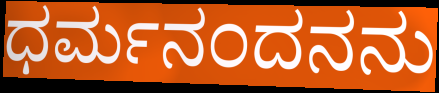
ಧರ್ಮನಂದನನು